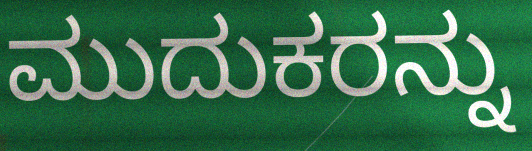
ಮುದುಕರನ್ನು